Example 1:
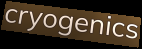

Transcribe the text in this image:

cryogenics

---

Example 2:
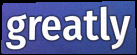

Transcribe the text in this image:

greatly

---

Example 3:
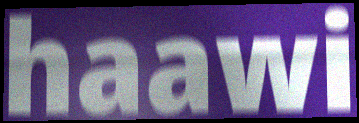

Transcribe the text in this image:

haawi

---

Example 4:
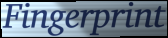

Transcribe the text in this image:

Fingerprint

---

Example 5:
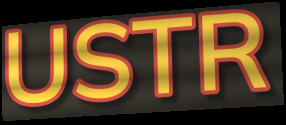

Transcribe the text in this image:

USTR